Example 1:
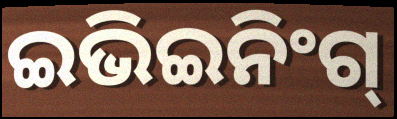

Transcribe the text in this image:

ଇଭିଇନିଂଗ୍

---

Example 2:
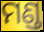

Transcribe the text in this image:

ମଣ୍ଡ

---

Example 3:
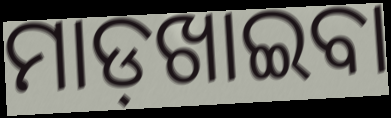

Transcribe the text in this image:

ମାଡ଼ଖାଇବା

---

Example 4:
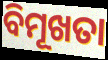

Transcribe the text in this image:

ବିମୂଖତା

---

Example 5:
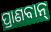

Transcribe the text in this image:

ପ୍ରାଣବାନ୍